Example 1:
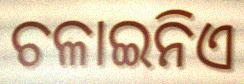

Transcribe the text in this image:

ଚଳାଇନିଏ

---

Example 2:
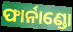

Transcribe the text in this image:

ଫାର୍ନାଣ୍ଡୋ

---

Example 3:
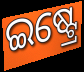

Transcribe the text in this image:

ଇଷ୍ଟ୍ରେ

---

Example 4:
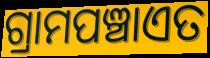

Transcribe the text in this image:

ଗ୍ରାମପଞ୍ଚାଏତ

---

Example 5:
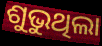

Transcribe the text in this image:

ଶୁଭୁଥିଲା